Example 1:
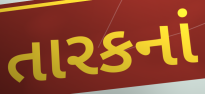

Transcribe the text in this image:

તારકનાં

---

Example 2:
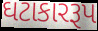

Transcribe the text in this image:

ઘટાકારરૂપ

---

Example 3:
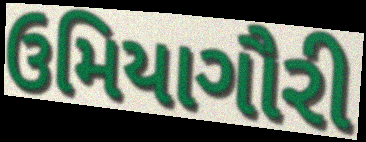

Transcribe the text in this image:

ઉમિયાગૌરી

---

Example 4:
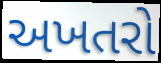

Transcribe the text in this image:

અખતરો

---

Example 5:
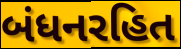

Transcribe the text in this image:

બંધનરહિત